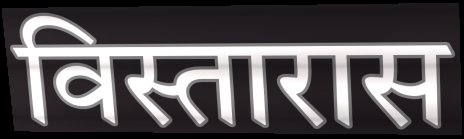
विस्तारास